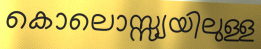
കൊലൊസ്സ്യയിലുള്ള